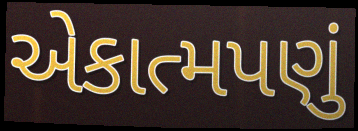
એકાત્મપણું